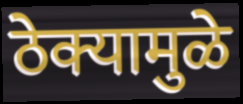
ठेक्यामुळे